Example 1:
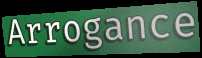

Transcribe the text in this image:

Arrogance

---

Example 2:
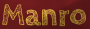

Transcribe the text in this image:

Manro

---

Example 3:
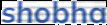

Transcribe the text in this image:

shobha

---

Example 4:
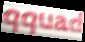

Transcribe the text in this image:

qquad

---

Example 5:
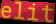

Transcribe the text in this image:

elit